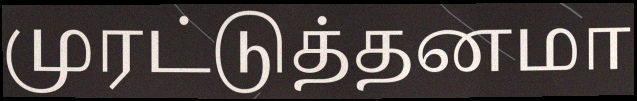
முரட்டுத்தனமா